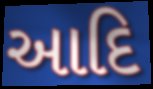
આદિ